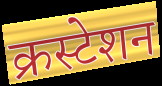
क्रस्टेशन